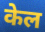
केल